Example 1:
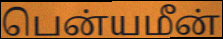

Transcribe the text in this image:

பென்யமீன்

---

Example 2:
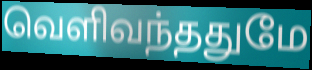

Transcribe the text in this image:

வெளிவந்ததுமே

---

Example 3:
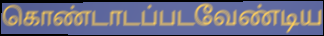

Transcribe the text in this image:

கொண்டாடப்படவேண்டிய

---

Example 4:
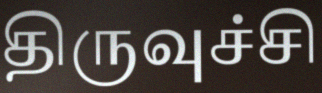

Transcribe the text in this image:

திருவுச்சி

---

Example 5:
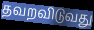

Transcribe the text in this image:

தவறவிடுவது